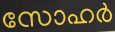
സോഹർ